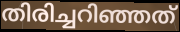
തിരിച്ചറിഞ്ഞത്